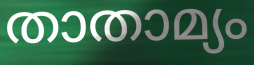
താതാമ്യം